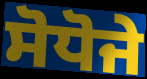
ਸੋਧੋਜੇ